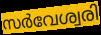
സർവേശ്വരി